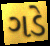
ગડે